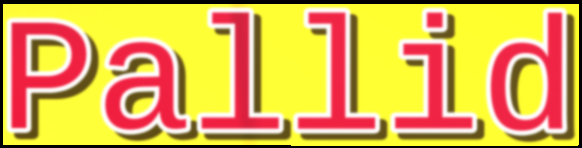
Pallid